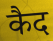
कैद